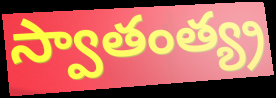
స్వాతంత్య్ర